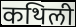
कथिली